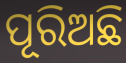
ପୂରିଅଛି